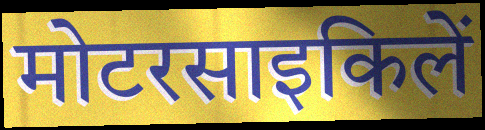
मोटरसाइकिलें